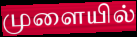
முளையில்